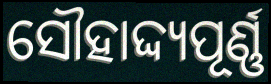
ସୌହାଦ୍ଦ୍ୟପୂର୍ଣ୍ଣ